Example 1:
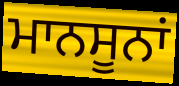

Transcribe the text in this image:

ਮਾਨਸੂਨਾਂ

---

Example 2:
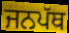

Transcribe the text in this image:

ਜਨਪੱਥ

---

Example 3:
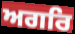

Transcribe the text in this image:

ਅਗਰਿ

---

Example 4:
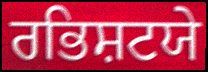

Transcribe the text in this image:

ਰਭਿਸ਼ਟਯੇ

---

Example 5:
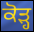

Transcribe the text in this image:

ਕੋੜ੍ਹ